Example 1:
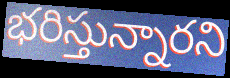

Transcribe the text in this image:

భరిస్తున్నారని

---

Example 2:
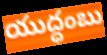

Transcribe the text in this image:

యుద్ధంబు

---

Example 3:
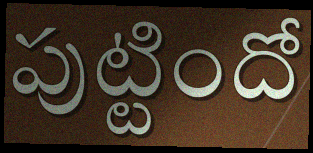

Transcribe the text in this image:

పుట్టిందో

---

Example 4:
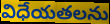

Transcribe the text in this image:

విధేయతలను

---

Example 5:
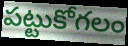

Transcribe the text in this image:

పట్టుకోగలం